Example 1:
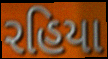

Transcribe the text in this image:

રહિયા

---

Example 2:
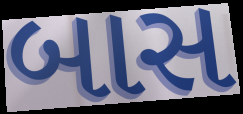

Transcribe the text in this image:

બાસ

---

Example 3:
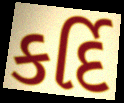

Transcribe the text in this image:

કર્દિ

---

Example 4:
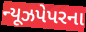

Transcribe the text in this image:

ન્યૂઝપેપરના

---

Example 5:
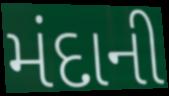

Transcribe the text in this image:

મંદાની